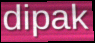
dipak